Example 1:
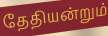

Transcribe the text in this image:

தேதியன்றும்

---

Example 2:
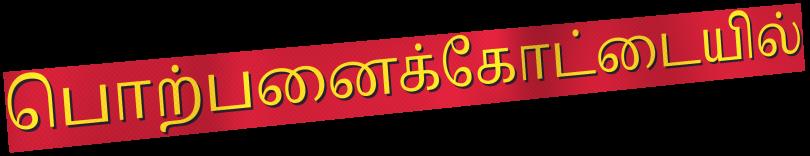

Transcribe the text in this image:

பொற்பனைக்கோட்டையில்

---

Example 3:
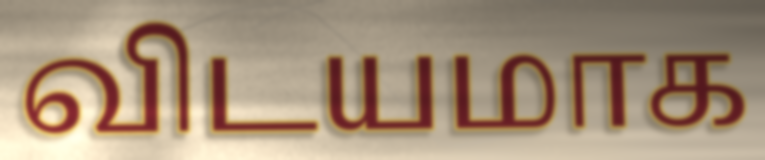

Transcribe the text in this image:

விடயமாக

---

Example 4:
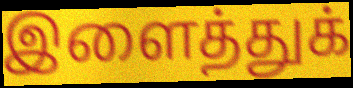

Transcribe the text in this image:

இளைத்துக்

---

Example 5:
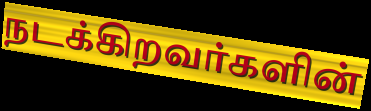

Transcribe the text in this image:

நடக்கிறவர்களின்